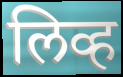
लिव्ह